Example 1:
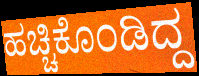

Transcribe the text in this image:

ಹಚ್ಚಿಕೊಂಡಿದ್ದ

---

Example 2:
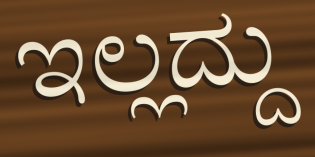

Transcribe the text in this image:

ಇಲ್ಲದ್ದು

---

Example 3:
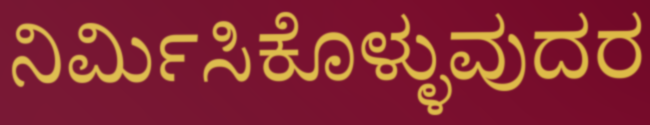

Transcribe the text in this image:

ನಿರ್ಮಿಸಿಕೊಳ್ಳುವುದರ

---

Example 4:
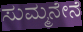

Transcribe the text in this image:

ಸುಮ್ಮನೇನೆ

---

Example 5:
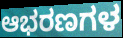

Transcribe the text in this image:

ಆಭರಣಗಳ